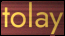
tolay